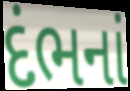
દંભનાં